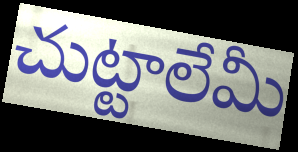
చుట్టాలేమీ